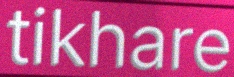
tikhare